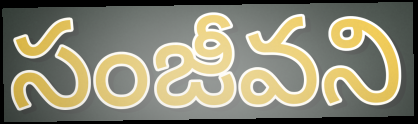
సంజీవని